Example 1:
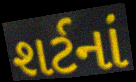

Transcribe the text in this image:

શર્ટનાં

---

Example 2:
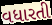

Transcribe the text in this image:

વધારતી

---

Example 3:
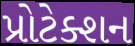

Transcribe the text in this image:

પ્રોટેક્શન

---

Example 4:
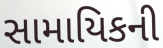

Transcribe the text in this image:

સામાયિકની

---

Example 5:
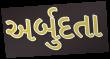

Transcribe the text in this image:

અર્બુદતા